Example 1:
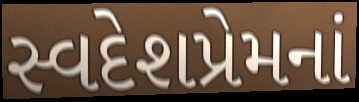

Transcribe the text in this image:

સ્વદેશપ્રેમનાં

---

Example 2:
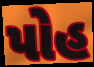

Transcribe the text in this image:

પોહ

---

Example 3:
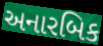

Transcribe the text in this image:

અનારબિક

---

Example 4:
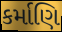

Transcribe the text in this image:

કર્માણિ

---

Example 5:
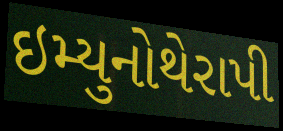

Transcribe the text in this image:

ઇમ્યુનોથેરાપી